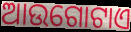
ଆଉଗୋଟାଏ